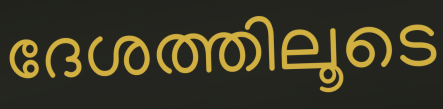
ദേശത്തിലൂടെ